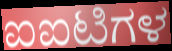
ಐಐಟಿಗಳ